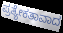
ಪ್ರತ್ಯೇಕತಾವಾದ